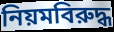
নিয়মবিরুদ্ধ